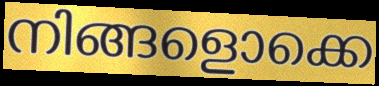
നിങ്ങളൊക്കെ